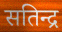
सतिन्द्र